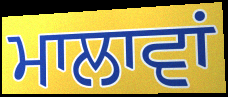
ਮਾਲਾਵਾਂ